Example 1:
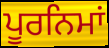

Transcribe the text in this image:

ਪੂਰਨਿਮਾਂ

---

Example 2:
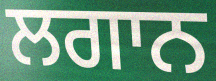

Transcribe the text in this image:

ਲਗਾਨ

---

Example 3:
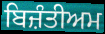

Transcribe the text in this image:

ਬਿਜ਼ੰਤੀਅਮ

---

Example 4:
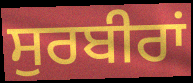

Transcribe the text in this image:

ਸੁਰਬੀਰਾਂ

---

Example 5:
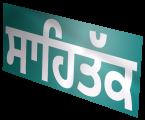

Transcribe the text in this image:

ਸਾਹਿਤੱਕ